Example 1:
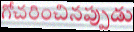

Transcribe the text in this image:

గోచరించినప్పుడు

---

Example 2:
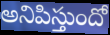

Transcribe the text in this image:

అనిపిస్తుందో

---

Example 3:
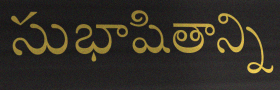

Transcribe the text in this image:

సుభాషితాన్ని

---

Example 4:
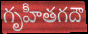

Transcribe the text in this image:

గృహీతగదౌ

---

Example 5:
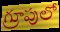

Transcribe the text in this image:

గ్రూపులో